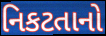
નિકટતાનો